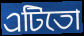
এটিতো